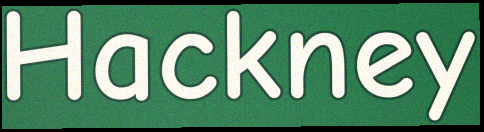
Hackney